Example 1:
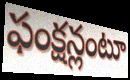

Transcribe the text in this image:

ఫంక్షన్లంటూ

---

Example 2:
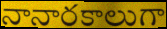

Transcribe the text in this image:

నానారకాలుగా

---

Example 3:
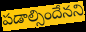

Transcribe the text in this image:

పడాల్సిందేనని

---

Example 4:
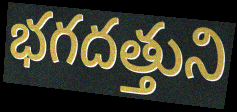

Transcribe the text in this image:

భగదత్తుని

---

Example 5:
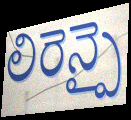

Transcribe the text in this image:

లిరెన్పై